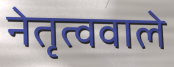
नेतृत्ववाले